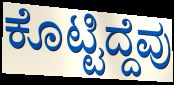
ಕೊಟ್ಟಿದ್ದೆವು